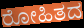
ರೋಹಿತದ